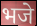
भजे